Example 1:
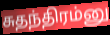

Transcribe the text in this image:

சுதந்திரம்னு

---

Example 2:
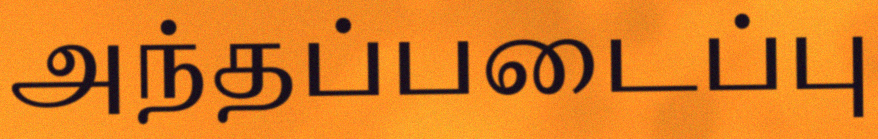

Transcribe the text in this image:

அந்தப்படைப்பு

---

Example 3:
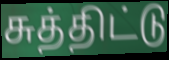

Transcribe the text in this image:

சுத்திட்டு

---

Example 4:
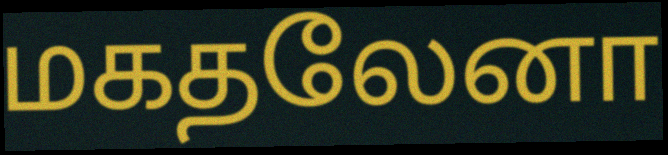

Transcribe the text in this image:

மகதலேனா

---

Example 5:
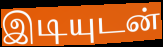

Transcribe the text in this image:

இடியுடன்